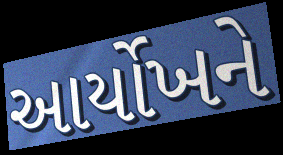
આર્યોખને